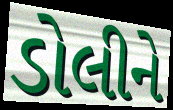
ડોલીને